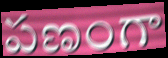
పణంగా